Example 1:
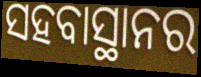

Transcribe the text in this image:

ସହବାସ୍ଥାନର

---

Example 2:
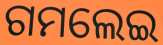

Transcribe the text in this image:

ଗମଲେଇ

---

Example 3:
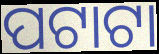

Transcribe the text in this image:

ପଟାଟା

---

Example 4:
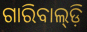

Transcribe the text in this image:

ଗାରିବାଲ୍‌ଡ଼ି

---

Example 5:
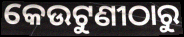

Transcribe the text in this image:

କେଉଟୁଣୀଠାରୁ